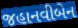
જહાનવીબેન